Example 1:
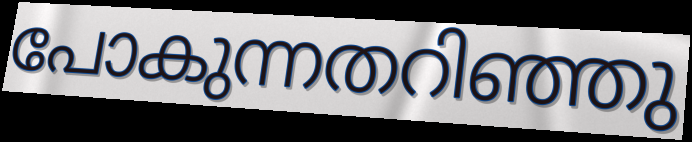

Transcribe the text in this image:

പോകുന്നതറിഞ്ഞു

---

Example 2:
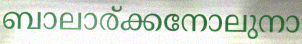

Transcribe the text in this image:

ബാലാര്ക്കനോലുനാ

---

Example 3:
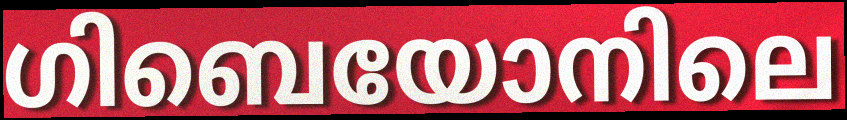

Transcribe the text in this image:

ഗിബെയോനിലെ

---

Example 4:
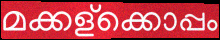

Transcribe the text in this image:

മക്കള്ക്കൊപ്പം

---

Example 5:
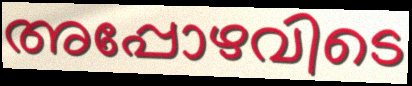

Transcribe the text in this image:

അപ്പോഴവിടെ